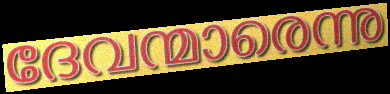
ദേവന്മാരെന്നു